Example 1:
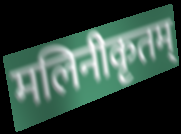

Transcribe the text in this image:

मलिनीकृतम्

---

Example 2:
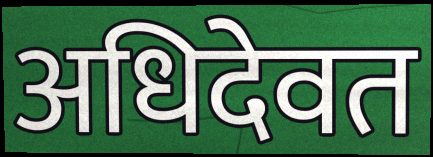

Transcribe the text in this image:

अधिदेवत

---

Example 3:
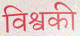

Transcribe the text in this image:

विश्वकी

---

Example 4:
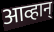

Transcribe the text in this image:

आव्हान्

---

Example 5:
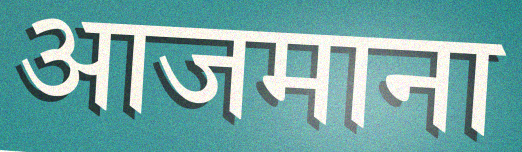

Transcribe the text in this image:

आजमाना